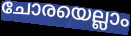
ചോരയെല്ലാം